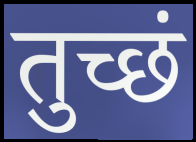
तुच्छं